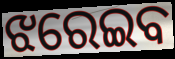
ଝରେଇବ